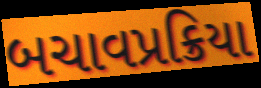
બચાવપ્રક્રિયા